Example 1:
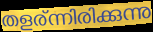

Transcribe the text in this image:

തളര്ന്നിരിക്കുന്നു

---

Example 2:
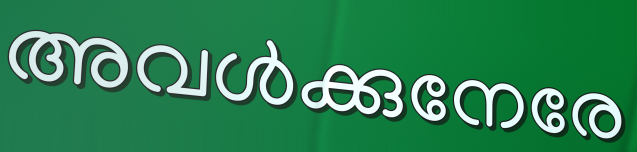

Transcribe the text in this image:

അവൾക്കുനേരേ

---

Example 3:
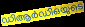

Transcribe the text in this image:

ഡിആർഡിഒയുടെ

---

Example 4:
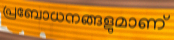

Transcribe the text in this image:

പ്രബോധനങ്ങളുമാണ്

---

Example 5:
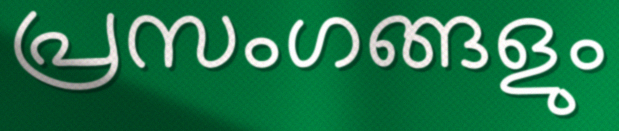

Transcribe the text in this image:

പ്രസംഗങ്ങളും